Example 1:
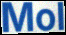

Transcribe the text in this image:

Mol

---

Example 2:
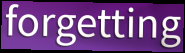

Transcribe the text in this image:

forgetting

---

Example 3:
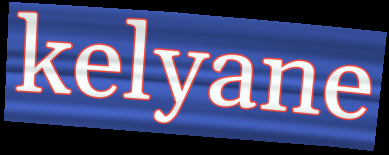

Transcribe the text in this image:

kelyane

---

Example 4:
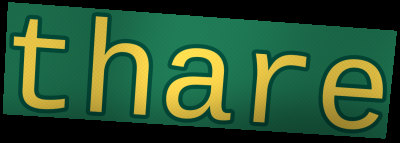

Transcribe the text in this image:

thare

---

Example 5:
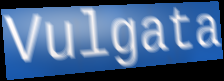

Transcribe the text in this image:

Vulgata